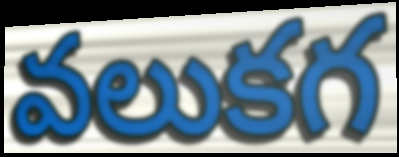
వలుకగ